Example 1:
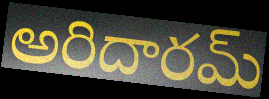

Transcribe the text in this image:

అరిదారమ్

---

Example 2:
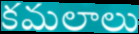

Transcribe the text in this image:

కమలాలు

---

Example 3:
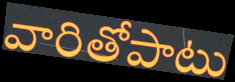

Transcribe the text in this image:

వారితోపాటు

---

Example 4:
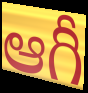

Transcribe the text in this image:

ఆగీ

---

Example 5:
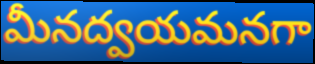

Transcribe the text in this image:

మీనద్వయమనగా